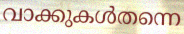
വാക്കുകൾതന്നെ